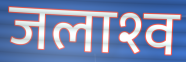
जलाश्व